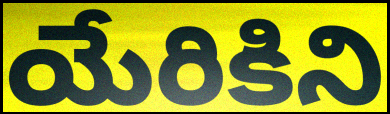
యేరికిని